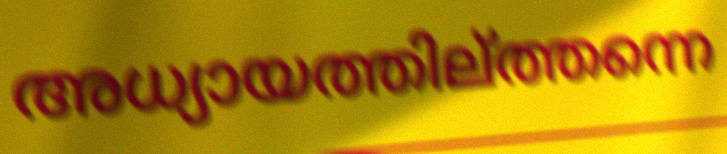
അധ്യായത്തില്ത്തന്നെ